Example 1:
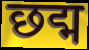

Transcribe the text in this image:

छद्म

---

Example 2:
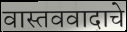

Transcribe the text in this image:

वास्तववादाचे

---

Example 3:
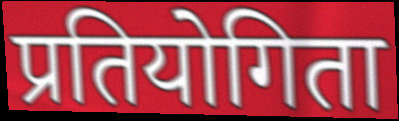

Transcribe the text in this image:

प्रतियोगिता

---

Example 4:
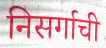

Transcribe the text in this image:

निसर्गाची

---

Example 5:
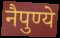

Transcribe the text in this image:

नैपुण्ये